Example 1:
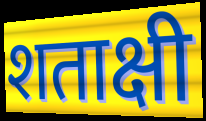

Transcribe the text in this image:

शताक्षी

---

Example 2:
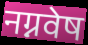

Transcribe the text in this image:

नग्नवेष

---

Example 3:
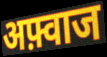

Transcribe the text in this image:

अफ़्वाज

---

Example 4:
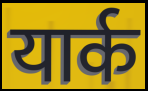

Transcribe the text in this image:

यार्क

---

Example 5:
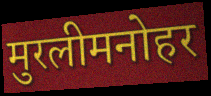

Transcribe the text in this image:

मुरलीमनोहर